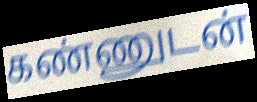
கண்ணுடன்